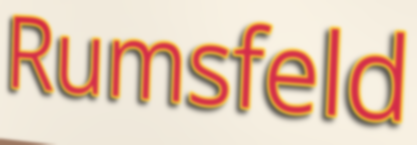
Rumsfeld